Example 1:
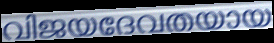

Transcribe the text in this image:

വിജയദേവതയായ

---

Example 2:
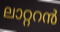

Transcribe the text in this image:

ലാറ്ററൻ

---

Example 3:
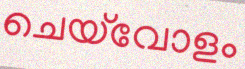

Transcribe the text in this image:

ചെയ്‌വോളം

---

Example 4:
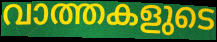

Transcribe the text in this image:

വാത്തകളുടെ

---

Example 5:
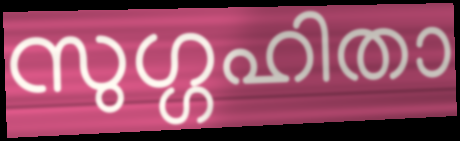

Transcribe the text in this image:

സുഗ്ഗഹിതാ